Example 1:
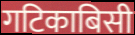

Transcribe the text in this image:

गटिकाबिसी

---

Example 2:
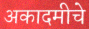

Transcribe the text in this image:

अकादमीचे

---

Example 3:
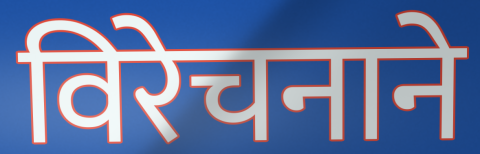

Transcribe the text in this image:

विरेचनाने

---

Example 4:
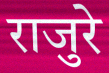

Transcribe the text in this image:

राजुरे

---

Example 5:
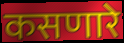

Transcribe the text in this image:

कसणारे